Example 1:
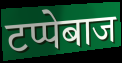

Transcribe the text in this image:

टप्पेबाज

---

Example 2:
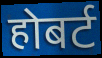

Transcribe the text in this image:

होबर्ट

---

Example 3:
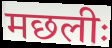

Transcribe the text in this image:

मछलीः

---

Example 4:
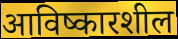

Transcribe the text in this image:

आविष्कारशील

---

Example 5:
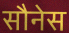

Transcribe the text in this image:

सौनेस